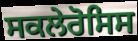
ਸਕਲੇਰੋਸਿਸ